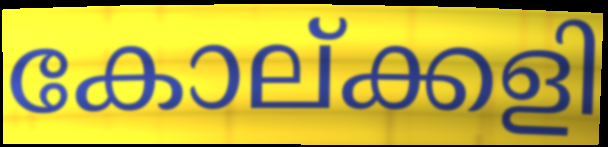
കോല്ക്കളി